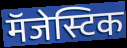
मॅजेस्टिक